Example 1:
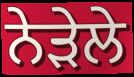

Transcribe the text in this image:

ਨੇੜੇਲੇ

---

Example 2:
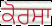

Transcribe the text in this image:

ਕੋਰਸਾ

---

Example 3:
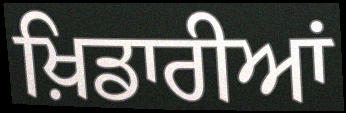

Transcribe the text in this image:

ਖ਼ਿਡਾਰੀਆਂ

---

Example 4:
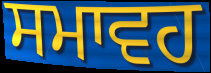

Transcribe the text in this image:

ਸਮਾਵਹ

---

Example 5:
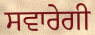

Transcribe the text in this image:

ਸਵਾਰੇਗੀ